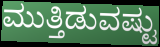
ಮುತ್ತಿಡುವಷ್ಟು